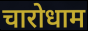
चारोधाम